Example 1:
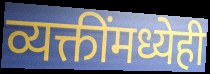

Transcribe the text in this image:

व्यक्तींमध्येही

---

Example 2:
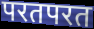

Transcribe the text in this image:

परतपरत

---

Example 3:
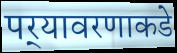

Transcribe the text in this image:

पर्यावरणाकडे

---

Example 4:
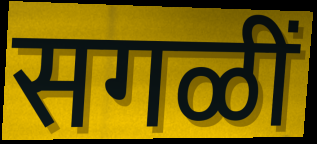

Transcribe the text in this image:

सगळीं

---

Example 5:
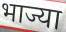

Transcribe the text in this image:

भाज्या